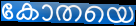
കോതയെ